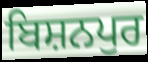
ਬਿਸ਼ਨਪੁਰ